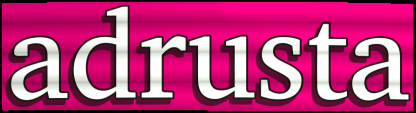
adrusta